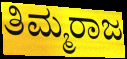
ತಿಮ್ಮರಾಜ